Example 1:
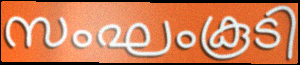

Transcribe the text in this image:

സംഘംകൂടി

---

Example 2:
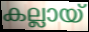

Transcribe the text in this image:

കല്ലായ്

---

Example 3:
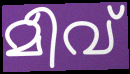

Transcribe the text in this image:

മീവ്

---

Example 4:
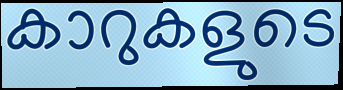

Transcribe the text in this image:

കാറുകളുടെ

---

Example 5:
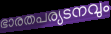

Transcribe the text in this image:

ഭാരതപര്യടനവും